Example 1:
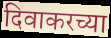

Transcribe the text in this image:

दिवाकरच्या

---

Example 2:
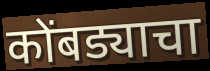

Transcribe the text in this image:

कोंबड्याचा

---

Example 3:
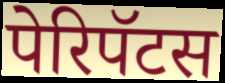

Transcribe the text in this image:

पेरिपॅटस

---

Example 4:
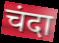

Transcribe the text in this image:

चंदा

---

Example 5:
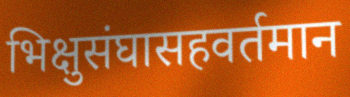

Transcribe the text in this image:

भिक्षुसंघासहवर्तमान